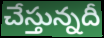
చేస్తున్నదీ